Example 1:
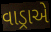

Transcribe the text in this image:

વાડ્રાએ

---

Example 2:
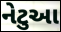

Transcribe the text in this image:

નેટુઆ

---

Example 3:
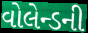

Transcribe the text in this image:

વોલેન્ડની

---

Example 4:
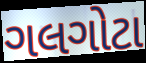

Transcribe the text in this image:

ગલગોટા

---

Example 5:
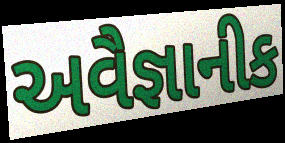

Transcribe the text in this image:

અવૈજ્ઞાનીક